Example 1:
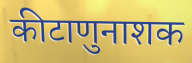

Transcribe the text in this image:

कीटाणुनाशक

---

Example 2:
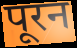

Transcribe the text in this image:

पूरन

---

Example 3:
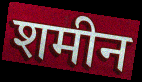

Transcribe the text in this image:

शमीन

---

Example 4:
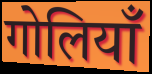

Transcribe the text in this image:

गोलियाँ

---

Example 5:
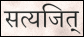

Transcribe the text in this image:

सत्यजित्